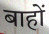
बाहों